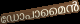
ഡോപാമൈൻ